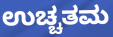
ಉಚ್ಚತಮ